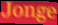
Jonge